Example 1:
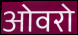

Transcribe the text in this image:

ओवरो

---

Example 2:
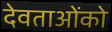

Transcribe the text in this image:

देवताओंको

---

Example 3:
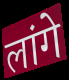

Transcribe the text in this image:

लांगे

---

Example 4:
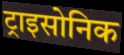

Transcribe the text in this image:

ट्राइसोनिक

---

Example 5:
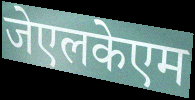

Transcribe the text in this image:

जेएलकेएम